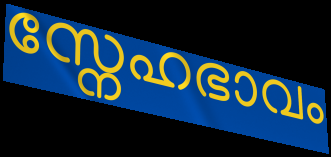
സ്നേഹഭാവം